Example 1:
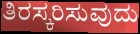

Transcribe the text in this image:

ತಿರಸ್ಕರಿಸುವುದು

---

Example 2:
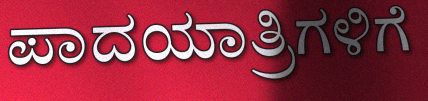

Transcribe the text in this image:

ಪಾದಯಾತ್ರಿಗಳಿಗೆ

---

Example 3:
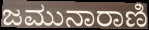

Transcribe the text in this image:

ಜಮುನಾರಾಣಿ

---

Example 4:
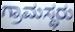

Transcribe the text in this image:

ಗ್ರಾಮಸ್ಥರು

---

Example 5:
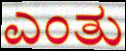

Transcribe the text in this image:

ಎಂತು